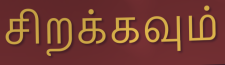
சிறக்கவும்